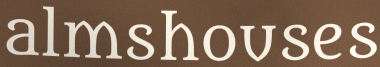
almshouses